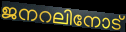
ജനറലിനോട്